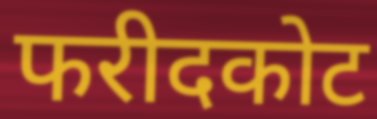
फरीदकोट